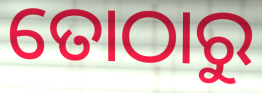
ତୋଠାରୁ